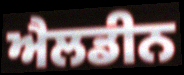
ਐਲਡੀਨ